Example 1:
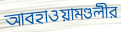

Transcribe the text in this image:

আবহাওয়ামণ্ডলীর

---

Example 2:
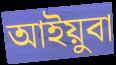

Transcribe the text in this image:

আইয়ুবা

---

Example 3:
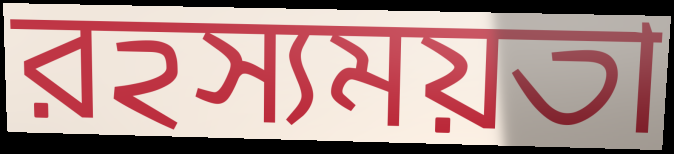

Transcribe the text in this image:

রহস্যময়তা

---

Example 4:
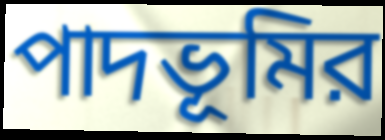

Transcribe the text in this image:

পাদভূমির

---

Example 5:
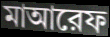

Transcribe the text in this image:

মাআরেফ